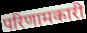
परिणामकारी